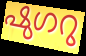
ഷുഗറു